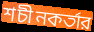
শচীনকর্তার